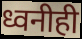
ध्वनीही